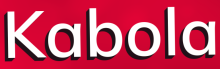
Kabola